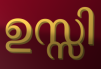
ഉസ്സി